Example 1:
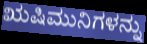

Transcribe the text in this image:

ಋಷಿಮುನಿಗಳನ್ನು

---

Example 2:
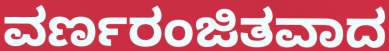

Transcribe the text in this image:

ವರ್ಣರಂಜಿತವಾದ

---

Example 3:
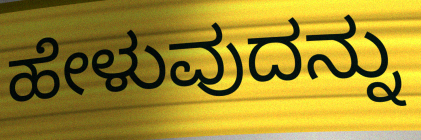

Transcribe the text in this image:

ಹೇಳುವುದನ್ನು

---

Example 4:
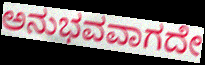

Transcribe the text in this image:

ಅನುಭವವಾಗದೇ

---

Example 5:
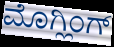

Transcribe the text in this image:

ಮೊಗ್ಲಿಂಗ್